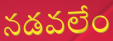
నడవలేం